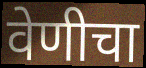
वेणीचा